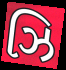
ઝિ